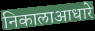
निकालाआधारे